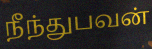
நீந்துபவன்